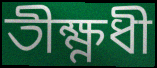
তীক্ষ্ণধী